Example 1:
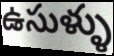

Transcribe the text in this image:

ఉసుళ్ళు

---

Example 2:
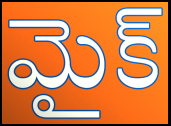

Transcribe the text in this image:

మైక్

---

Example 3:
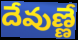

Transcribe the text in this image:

దేవుణ్ణే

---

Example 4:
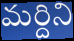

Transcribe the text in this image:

మర్దిని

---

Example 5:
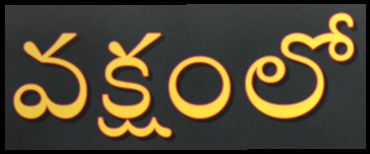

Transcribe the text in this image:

వక్షంలో